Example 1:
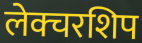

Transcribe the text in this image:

लेक्चरशिप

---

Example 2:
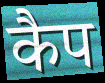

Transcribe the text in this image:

कैप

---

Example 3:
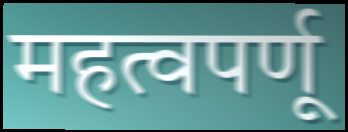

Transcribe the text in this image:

महत्‍वपर्णू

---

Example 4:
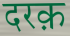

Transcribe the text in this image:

दरक़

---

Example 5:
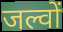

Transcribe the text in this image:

जल्वों